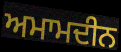
ਅਮਾਮਦੀਨ